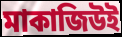
মাকাজিউই